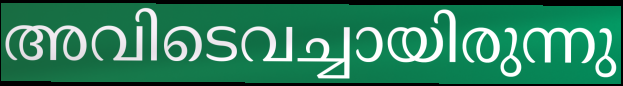
അവിടെവച്ചായിരുന്നു